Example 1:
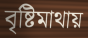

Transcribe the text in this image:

বৃষ্টিমাথায়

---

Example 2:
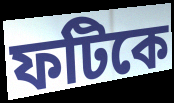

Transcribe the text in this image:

ফটিকে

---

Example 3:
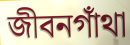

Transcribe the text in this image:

জীবনগাঁথা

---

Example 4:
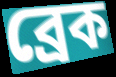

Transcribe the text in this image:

ব্রেক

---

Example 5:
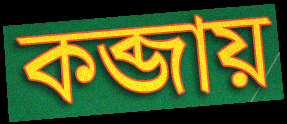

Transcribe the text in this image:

কব্জায়